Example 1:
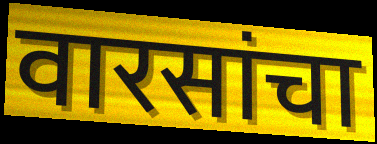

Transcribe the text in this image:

वारसांचा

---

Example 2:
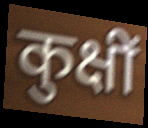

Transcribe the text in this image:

कुक्षीं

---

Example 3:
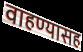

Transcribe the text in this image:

वाहण्यासह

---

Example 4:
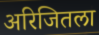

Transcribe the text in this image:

अरिजितला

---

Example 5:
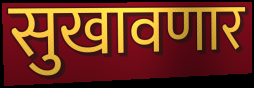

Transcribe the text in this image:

सुखावणार